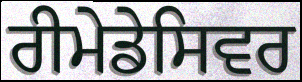
ਰੀਮੇਡੇਸਿਵਰ